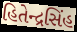
હિતેન્દ્રસિંહ